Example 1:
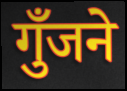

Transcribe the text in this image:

गुँजने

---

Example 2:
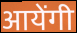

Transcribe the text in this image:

आयेंगी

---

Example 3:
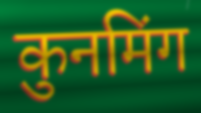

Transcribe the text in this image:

कुनमिंग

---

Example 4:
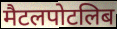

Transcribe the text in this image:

मैटलपोटलिब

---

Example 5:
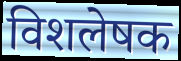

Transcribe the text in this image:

विशलेषक